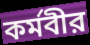
কর্মবীর